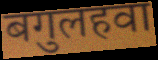
बगुलहवा